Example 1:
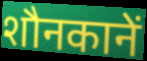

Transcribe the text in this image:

शौनकानें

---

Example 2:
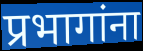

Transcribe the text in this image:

प्रभागांना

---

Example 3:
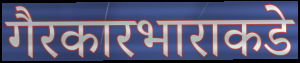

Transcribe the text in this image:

गैरकारभाराकडे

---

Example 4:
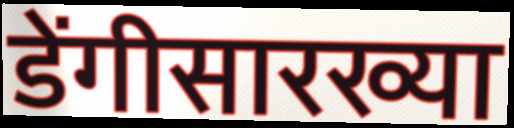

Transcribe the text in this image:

डेंगीसारख्या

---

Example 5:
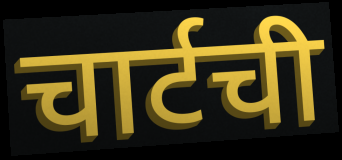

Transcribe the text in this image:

चार्टची